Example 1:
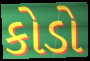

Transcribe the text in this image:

કોડો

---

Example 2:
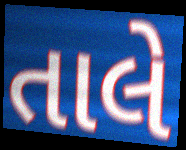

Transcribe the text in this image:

તાલે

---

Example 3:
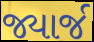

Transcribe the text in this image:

જ્યાર્જ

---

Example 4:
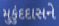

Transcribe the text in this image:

મુકુંદદાસને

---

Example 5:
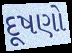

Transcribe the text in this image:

દૂષણો